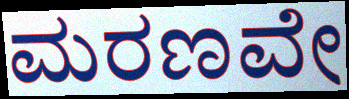
ಮರಣವೇ